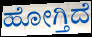
ಹೋಗ್ತಿದೆ